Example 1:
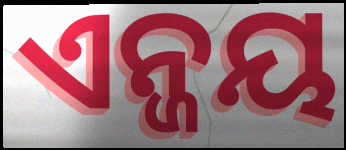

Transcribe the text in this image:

ଏନ୍ଜୟ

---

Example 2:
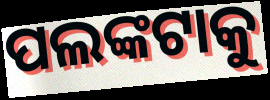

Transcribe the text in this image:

ପଲଙ୍କଟାକୁ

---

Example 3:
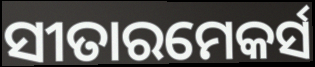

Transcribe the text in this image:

ସୀତାରମେକର୍ସ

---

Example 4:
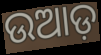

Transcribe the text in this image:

ଉଆଡ଼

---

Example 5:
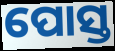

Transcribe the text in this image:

ପୋସ୍ତ